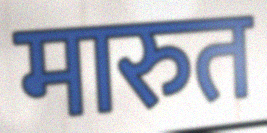
मारुत